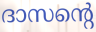
ദാസന്റെ